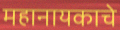
महानायकाचे